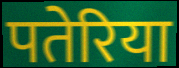
पतेरिया